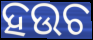
ହଉଚ